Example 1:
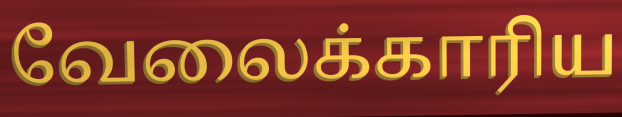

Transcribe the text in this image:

வேலைக்காரிய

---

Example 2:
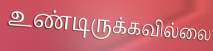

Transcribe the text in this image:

உண்டிருக்கவில்லை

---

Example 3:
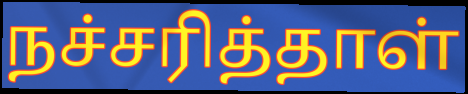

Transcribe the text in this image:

நச்சரித்தாள்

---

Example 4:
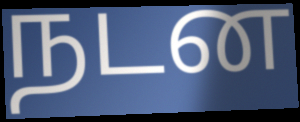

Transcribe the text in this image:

நடன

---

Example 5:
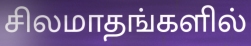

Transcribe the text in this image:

சிலமாதங்களில்